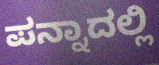
ಪನ್ನಾದಲ್ಲಿ